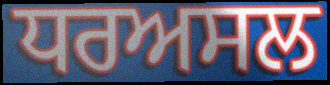
ਧਰਅਸਲ